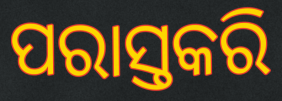
ପରାସ୍ତକରି